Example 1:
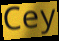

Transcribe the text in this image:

Cey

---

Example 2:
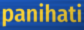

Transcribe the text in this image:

panihati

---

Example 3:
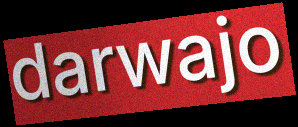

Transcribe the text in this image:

darwajo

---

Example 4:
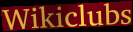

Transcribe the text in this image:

Wikiclubs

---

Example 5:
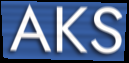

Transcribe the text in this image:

AKS